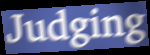
Judging